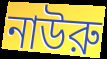
নাউরু